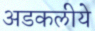
अडकलीये